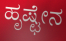
ಹೃಷ್ಟೇನ